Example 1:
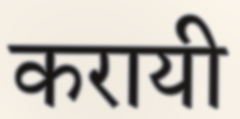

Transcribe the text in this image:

करायी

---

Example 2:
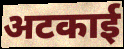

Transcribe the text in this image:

अटकाई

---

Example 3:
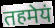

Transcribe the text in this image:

तहमेयं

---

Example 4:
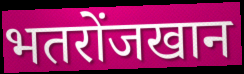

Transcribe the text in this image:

भतरोंजखान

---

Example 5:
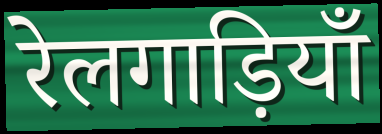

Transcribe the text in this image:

रेलगाड़ियाँ